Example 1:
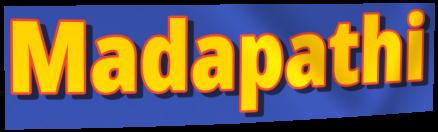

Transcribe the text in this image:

Madapathi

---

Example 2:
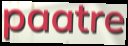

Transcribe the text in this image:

paatre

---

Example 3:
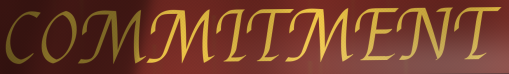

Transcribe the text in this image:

COMMITMENT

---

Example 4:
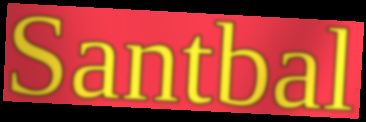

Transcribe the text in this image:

Santbal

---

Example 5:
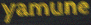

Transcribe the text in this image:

yamune